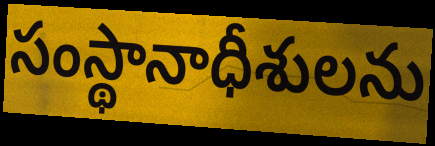
సంస్థానాధీశులను